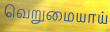
வெறுமையாய்